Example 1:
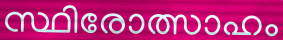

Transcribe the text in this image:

സ്ഥിരോത്സാഹം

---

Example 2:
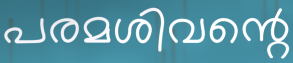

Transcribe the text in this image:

പരമശിവന്റെ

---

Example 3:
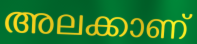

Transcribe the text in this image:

അലക്കാണ്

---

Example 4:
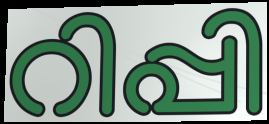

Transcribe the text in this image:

റിപ്പി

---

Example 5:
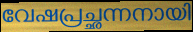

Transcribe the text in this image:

വേഷപ്രച്ഛന്നനായി